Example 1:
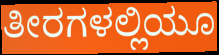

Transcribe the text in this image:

ತೀರಗಳಲ್ಲಿಯೂ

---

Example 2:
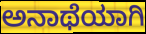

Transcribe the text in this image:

ಅನಾಥೆಯಾಗಿ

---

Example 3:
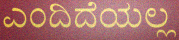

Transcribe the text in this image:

ಎಂದಿದೆಯಲ್ಲ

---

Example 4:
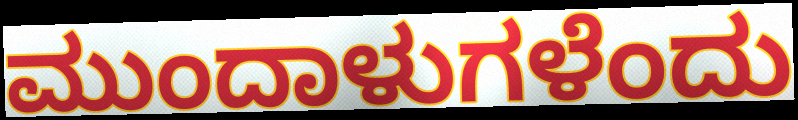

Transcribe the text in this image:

ಮುಂದಾಳುಗಳೆಂದು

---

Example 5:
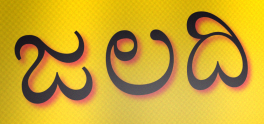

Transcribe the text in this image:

ಜಲದಿ